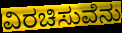
ವಿರಚಿಸುವೆನು